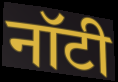
नॉटी